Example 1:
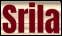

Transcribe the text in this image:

Srila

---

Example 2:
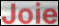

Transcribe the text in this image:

Joie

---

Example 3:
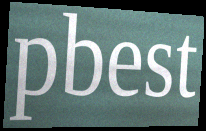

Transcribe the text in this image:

pbest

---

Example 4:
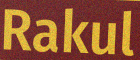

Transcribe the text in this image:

Rakul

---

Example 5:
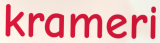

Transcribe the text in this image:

krameri